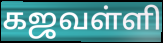
கஜவள்ளி